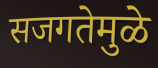
सजगतेमुळे